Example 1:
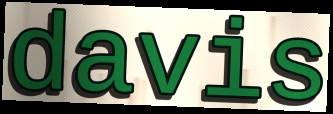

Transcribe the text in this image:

davis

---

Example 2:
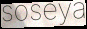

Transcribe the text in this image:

soseya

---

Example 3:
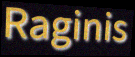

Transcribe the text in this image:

Raginis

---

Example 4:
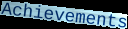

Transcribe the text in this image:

Achievements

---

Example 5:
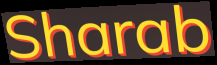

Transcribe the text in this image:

Sharab